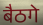
बैठगे